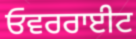
ਓਵਰਰਾਈਟ